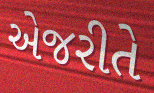
એજરીતે